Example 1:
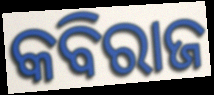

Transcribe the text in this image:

କବିରାଜ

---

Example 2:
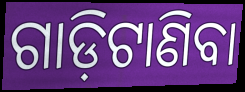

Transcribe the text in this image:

ଗାଡ଼ିଟାଣିବା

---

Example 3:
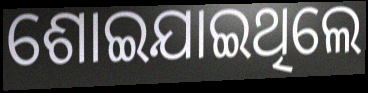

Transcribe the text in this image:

ଶୋଇଯାଇଥିଲେ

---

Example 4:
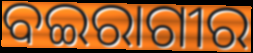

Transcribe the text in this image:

ବଇରାଗୀର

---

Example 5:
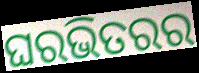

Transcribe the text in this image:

ଘରଭିତରର